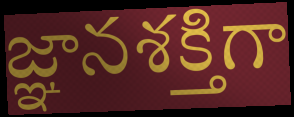
జ్ఞానశక్తిగా